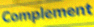
Complement